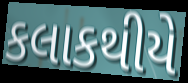
કલાકથીયે